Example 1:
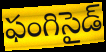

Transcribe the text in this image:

ఫంగిసైడ్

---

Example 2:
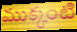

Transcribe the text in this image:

ముక్కంటి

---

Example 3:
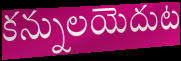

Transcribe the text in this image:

కన్నులయెదుట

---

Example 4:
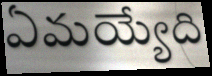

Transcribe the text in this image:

ఏమయ్యేది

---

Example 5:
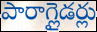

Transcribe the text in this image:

పారాగ్లైడర్లు